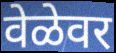
वेळेवर